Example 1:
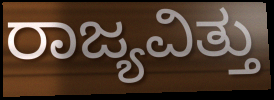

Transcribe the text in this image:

ರಾಜ್ಯವಿತ್ತು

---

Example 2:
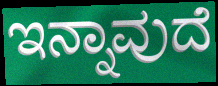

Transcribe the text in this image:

ಇನ್ನಾವುದೆ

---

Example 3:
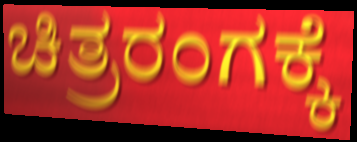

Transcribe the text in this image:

ಚಿತ್ರರಂಗಕ್ಕೆ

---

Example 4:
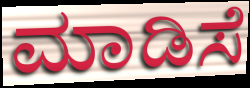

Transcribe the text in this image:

ಮಾಡಿಸೆ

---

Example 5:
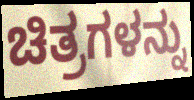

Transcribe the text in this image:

ಚಿತ್ರಗಳನ್ನು